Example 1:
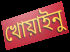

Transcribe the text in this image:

খোয়াইনু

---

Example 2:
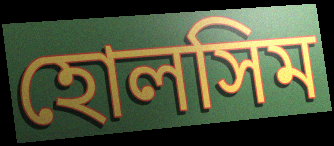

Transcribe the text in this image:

হোলসিম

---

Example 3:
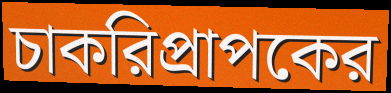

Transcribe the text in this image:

চাকরিপ্রাপকের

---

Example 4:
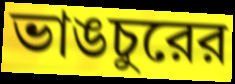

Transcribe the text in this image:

ভাঙচুরের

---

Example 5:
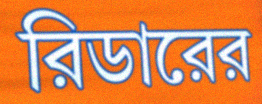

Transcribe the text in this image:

রিডারের